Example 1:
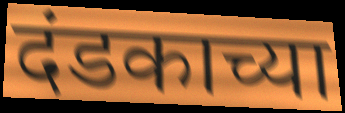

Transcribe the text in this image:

दंडकाच्या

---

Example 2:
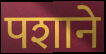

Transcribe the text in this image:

पशाने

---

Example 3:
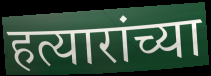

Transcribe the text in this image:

हत्यारांच्या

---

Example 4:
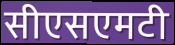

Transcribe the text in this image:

सीएसएमटी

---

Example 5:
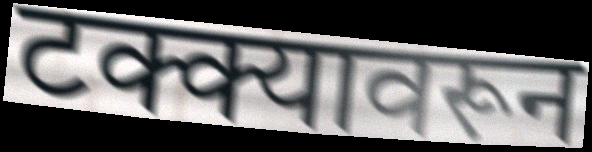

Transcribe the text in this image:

टक्क्यावरून